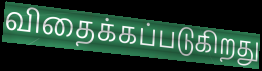
விதைக்கப்படுகிறது